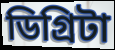
ডিগ্রিটা